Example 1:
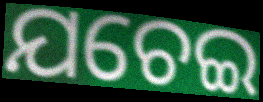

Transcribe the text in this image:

ଯଚେଇ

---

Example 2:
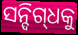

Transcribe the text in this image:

ସନ୍ଦିଗ୍‌ଧକୁ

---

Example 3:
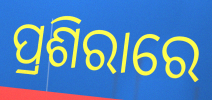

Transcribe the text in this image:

ପ୍ରଶିରାରେ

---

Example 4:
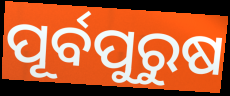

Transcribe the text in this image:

ପୂର୍ବପୁରୁଷ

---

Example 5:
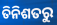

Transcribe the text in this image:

ତିନିଶତରୁ